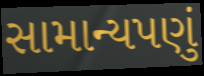
સામાન્યપણું